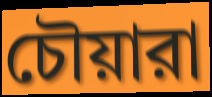
চৌয়ারা